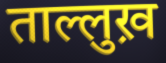
ताल्लुख़